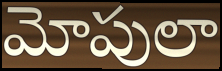
మోపులా